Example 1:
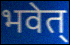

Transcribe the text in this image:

भवेत्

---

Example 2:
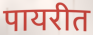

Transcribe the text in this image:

पायरीत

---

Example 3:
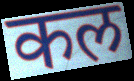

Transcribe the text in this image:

कल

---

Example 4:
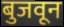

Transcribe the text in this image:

बुजवून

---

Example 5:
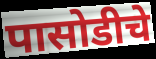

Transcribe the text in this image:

पासोडीचे